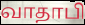
வாதாபி